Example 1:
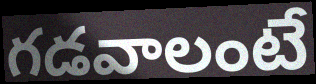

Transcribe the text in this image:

గడవాలంటే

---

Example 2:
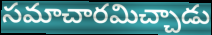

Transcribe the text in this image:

సమాచారమిచ్చాడు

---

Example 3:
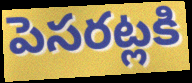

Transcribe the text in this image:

పెసరట్లకి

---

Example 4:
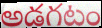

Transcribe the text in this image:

అడగటం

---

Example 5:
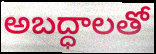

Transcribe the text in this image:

అబద్ధాలతో